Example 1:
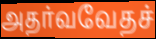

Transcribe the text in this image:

அதர்வவேதச்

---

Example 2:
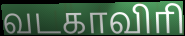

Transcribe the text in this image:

வடகாவிரி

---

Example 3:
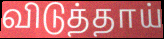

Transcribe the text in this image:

விடுத்தாய்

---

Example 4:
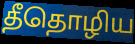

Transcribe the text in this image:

தீதொழிய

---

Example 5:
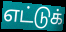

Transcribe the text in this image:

எட்டுக்